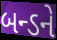
બન્ડને